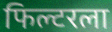
फिल्टरला